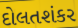
દોલતશંકર